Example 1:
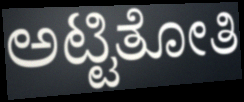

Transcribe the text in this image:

ಅಟ್ಟಿತೋತಿ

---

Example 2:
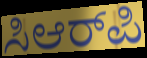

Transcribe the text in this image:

ಸಿಆರ್‌ಪಿ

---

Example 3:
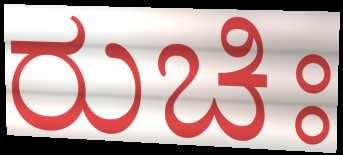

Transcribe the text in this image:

ರುಚಿಃ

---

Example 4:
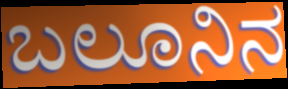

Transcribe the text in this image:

ಬಲೂನಿನ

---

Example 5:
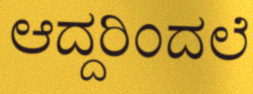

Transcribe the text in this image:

ಆದ್ದರಿಂದಲೆ